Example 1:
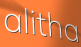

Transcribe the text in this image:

alitha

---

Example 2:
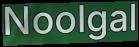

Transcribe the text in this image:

Noolgal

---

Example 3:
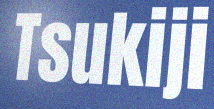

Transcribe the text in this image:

Tsukiji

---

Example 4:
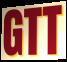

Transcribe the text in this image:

GTT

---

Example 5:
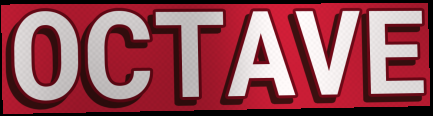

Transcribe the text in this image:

OCTAVE